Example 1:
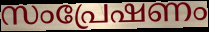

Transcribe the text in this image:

സംപ്രേഷണം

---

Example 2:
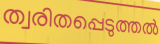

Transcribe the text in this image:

ത്വരിതപ്പെടുത്തൽ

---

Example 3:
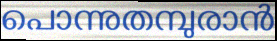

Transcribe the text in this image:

പൊന്നുതമ്പുരാൻ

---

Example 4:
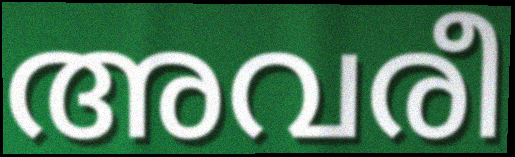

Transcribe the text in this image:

അവരീ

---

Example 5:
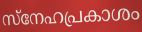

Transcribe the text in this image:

സ്നേഹപ്രകാശം